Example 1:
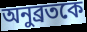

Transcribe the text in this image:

অনুব্রতকে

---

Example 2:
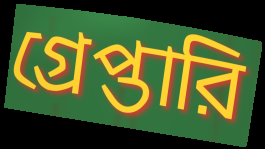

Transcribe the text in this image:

গ্রেপ্তারি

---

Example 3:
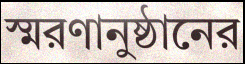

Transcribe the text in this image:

স্মরণানুষ্ঠানের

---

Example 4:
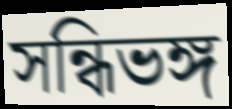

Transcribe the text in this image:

সন্ধিভঙ্গ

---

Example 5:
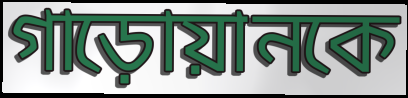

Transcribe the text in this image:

গাড়োয়ানকে